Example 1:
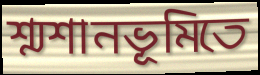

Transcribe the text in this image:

শ্মশানভূমিতে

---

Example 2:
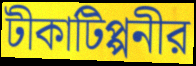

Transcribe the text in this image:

টীকাটিপ্পনীর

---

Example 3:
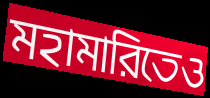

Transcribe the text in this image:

মহামারিতেও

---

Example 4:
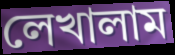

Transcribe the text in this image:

লেখালাম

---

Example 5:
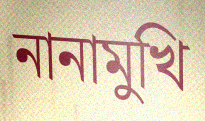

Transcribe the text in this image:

নানামুখি